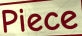
Piece